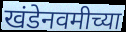
खंडेनवमीच्या